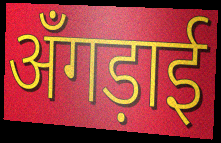
अँगड़ाई